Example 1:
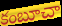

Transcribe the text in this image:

కంబూచా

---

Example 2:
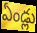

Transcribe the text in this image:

ఏండ్లు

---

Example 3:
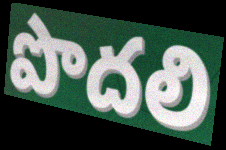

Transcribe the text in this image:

పొదలి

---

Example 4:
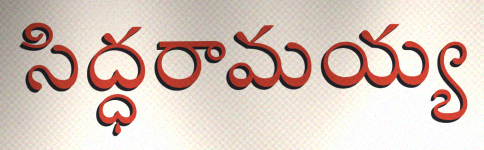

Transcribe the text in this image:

సిద్ధరామయ్య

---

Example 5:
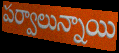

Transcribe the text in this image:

పర్వాలున్నాయి